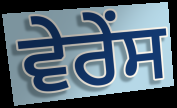
ਵੇਰੇਂਸ